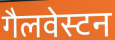
गैलवेस्टन